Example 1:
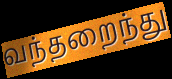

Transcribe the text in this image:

வந்தறைந்து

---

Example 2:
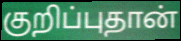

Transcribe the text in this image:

குறிப்புதான்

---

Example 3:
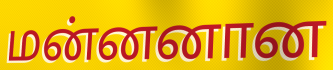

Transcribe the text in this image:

மன்னனான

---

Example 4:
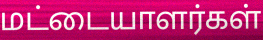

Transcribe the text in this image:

மட்டையாளர்கள்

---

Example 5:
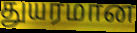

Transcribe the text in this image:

துயரமான